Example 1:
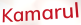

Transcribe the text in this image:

Kamarul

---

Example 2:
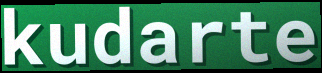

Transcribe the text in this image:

kudarte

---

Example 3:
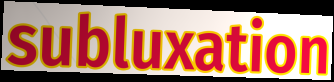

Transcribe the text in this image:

subluxation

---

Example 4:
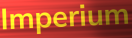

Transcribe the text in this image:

Imperium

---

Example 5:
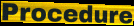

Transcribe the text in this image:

Procedure